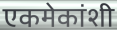
एकमेकांशी